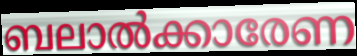
ബലാൽക്കാരേണ